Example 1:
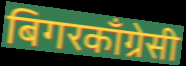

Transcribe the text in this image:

बिगरकाँग्रेसी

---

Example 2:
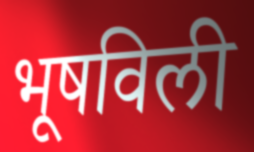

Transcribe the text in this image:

भूषविली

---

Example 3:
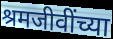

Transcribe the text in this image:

श्रमजीवींच्या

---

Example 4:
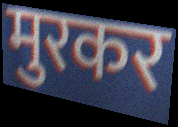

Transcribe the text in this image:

मुरकर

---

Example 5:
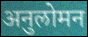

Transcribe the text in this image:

अनुलोमन